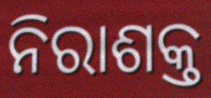
ନିରାଶକ୍ତ